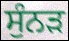
ਸੁੰਨੜ